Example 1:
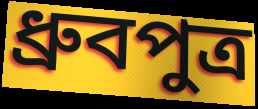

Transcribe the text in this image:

ধ্রুবপুত্র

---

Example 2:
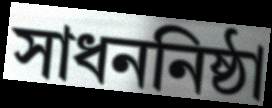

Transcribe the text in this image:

সাধননিষ্ঠা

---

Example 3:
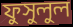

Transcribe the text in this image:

ফুসুলুল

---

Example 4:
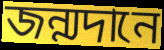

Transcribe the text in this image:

জন্মদানে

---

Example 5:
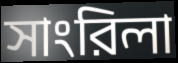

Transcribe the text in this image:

সাংরিলা